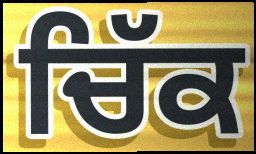
ਚਿੱਕ